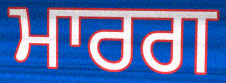
ਮਾਰਗ